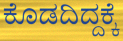
ಕೊಡದಿದ್ದಕ್ಕೆ